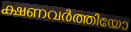
ക്ഷണവർത്തിയോ